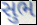
સુભ